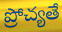
ప్రోచ్యతే